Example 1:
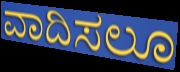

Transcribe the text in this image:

ವಾದಿಸಲೂ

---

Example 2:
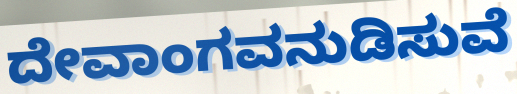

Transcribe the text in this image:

ದೇವಾಂಗವನುಡಿಸುವೆ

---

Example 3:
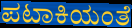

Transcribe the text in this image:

ಪಟಾಕಿಯಂತೆ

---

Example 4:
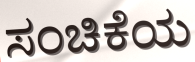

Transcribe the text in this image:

ಸಂಚಿಕೆಯ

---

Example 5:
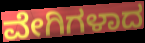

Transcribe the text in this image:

ವೇಗಿಗಳಾದ